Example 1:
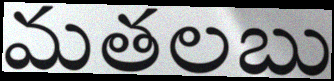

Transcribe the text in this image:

మతలబు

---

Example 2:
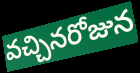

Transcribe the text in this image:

వచ్చినరోజున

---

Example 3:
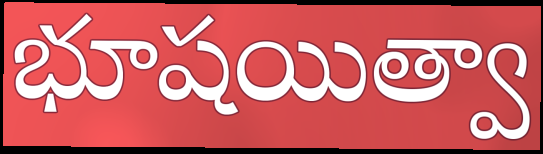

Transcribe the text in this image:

భూషయిత్వా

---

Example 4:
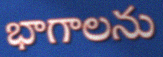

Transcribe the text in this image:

భాగాలను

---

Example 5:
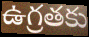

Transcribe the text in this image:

ఉగ్రతకు